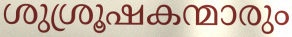
ശുശ്രൂഷകന്മാരും